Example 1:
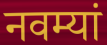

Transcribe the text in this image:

नवम्यां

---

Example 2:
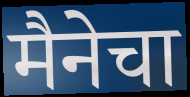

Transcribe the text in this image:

मैनेचा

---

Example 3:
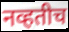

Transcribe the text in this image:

नव्हतीच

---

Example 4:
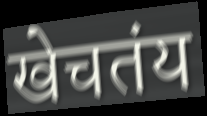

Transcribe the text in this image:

खेचतंय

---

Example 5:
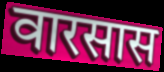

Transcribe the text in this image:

वारसास